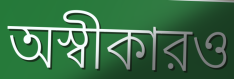
অস্বীকারও